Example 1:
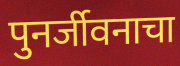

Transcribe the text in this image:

पुनर्जीवनाचा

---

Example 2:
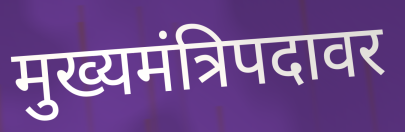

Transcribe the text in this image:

मुख्यमंत्रिपदावर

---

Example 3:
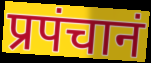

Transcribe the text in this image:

प्रपंचानं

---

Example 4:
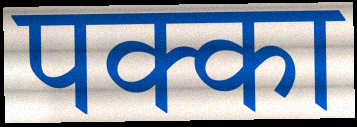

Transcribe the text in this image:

पक्का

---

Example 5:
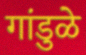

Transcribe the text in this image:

गांडुळे